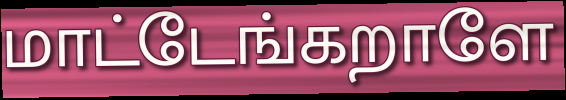
மாட்டேங்கறாளே